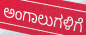
ಅಂಗಾಲುಗಳಿಗೆ